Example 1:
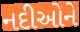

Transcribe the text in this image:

નદીઓને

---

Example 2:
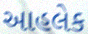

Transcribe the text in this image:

આહલેક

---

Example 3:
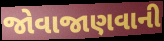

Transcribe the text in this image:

જોવાજાણવાની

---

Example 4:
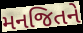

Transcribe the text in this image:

મનજિતને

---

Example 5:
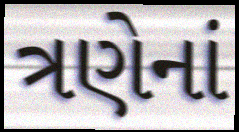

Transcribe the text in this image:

ત્રણેનાં